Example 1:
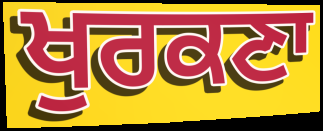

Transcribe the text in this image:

ਖੁਰਕਣਾ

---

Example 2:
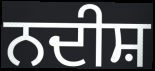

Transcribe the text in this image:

ਨਦੀਸ਼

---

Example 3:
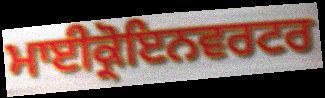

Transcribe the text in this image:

ਮਾਈਕ੍ਰੋਇਨਵਰਟਰ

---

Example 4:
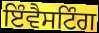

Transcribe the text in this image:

ਇੰਵੈਸਟਿੰਗ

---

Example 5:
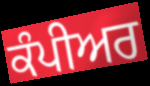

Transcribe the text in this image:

ਕੰਪੀਅਰ